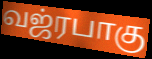
வஜ்ரபாகு